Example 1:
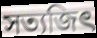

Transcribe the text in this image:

সত্যজিৎ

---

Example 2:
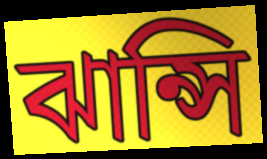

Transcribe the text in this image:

ঝান্সি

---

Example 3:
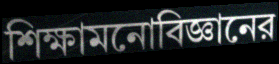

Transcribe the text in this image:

শিক্ষামনোবিজ্ঞানের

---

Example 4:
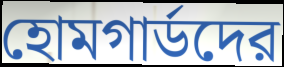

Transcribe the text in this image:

হোমগার্ডদের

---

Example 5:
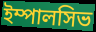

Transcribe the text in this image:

ইম্পালসিভ